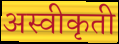
अस्वीकृती